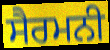
ਸੈਰਮਨੀ